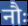
नौः